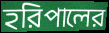
হরিপালের